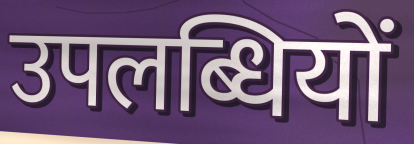
उपलब्धियों